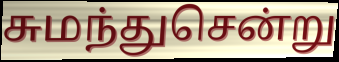
சுமந்துசென்று